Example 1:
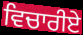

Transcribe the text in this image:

ਵਿਚਾਰੀਏ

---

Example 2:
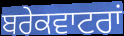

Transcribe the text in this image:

ਬਰੇਕਵਾਟਰਾਂ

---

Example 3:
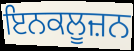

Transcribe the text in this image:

ਇਨਕਲੂਜ਼ਨ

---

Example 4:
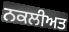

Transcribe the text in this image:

ਨਕਲੀਅਤ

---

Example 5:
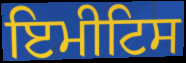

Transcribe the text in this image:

ਇਮੀਟਿਸ